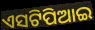
ଏସଟିପିଆଇ